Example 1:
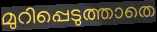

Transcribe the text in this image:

മുറിപ്പെടുത്താതെ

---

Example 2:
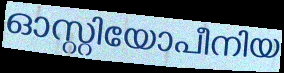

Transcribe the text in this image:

ഓസ്റ്റിയോപീനിയ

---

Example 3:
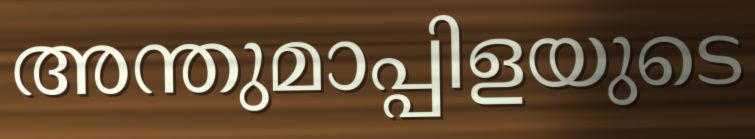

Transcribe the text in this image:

അന്തുമാപ്പിളയുടെ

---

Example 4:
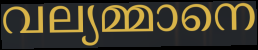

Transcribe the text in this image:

വല്യമ്മാനെ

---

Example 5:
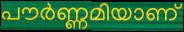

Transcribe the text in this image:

പൗർണ്ണമിയാണ്